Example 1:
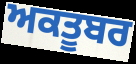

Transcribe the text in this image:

ਅਕਤੂਬਰ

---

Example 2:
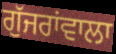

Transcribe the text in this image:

ਗੁੱਜਰਾਂਵਾਲਾ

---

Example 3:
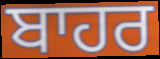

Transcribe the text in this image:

ਬਾਹਰ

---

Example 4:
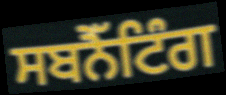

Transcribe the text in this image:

ਸਬਨੈੱਟਿੰਗ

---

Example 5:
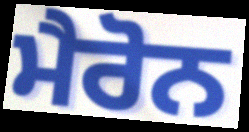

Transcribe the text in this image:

ਮੈਰੋਨ